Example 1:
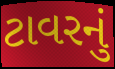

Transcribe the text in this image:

ટાવરનું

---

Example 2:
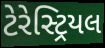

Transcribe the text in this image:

ટેરેસ્ટ્રિયલ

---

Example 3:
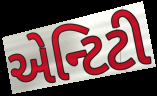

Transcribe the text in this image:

એન્ટિટી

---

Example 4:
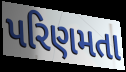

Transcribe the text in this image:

પરિણમતા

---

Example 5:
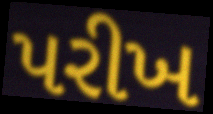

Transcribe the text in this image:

પરીખ